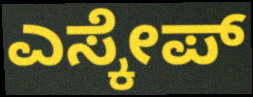
ಎಸ್ಕೇಪ್